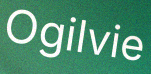
Ogilvie